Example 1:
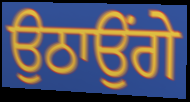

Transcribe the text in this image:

ਉਠਾਉਂਗੇ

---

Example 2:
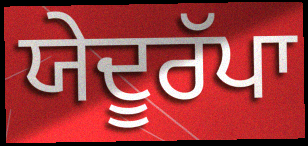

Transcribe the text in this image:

ਯੇਦੂਰੱਪਾ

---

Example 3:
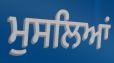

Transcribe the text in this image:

ਮੁਸਲਿਆਂ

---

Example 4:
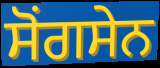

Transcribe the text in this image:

ਸੋਂਗਸੇਨ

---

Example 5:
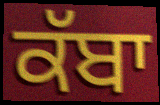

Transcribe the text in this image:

ਕੱਬਾ